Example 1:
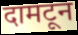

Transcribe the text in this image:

दामटून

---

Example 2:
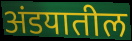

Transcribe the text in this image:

अंडयातील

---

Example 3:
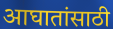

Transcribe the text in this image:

आघातांसाठी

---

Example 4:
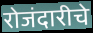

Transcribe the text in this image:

रोजंदारीचे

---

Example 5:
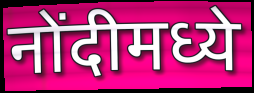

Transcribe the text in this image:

नोंदीमध्ये